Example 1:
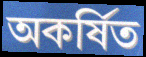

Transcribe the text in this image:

অকৰ্ষিত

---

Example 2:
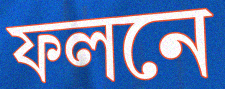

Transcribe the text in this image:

ফলনে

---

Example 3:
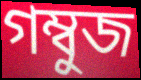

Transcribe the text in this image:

গম্বুজ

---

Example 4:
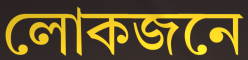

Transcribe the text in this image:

লোকজনে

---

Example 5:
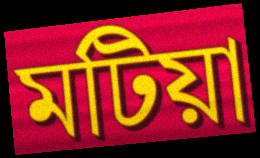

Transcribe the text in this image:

মটিয়া